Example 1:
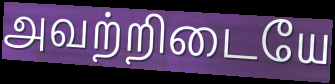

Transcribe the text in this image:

அவற்றிடையே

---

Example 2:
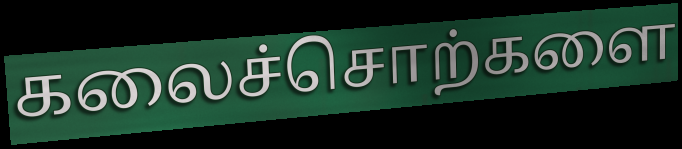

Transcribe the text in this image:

கலைச்சொற்களை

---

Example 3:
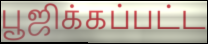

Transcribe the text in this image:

பூஜிக்கப்பட்ட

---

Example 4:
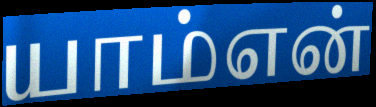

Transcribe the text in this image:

யாம்என்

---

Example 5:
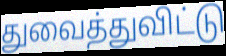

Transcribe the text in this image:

துவைத்துவிட்டு